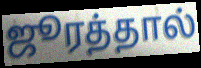
ஜூரத்தால்